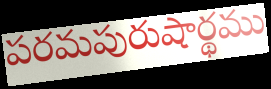
పరమపురుషార్థము